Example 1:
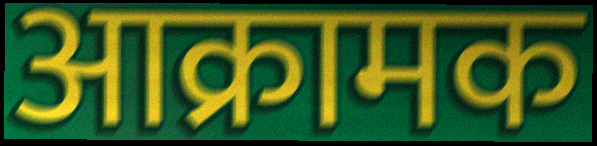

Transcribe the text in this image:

आक्रामक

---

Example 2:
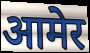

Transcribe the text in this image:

आमेर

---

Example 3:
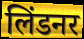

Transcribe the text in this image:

लिंडनर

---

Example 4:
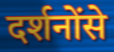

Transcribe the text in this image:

दर्शनोंसे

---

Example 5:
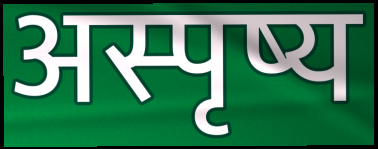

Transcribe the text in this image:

अस्पृष्य